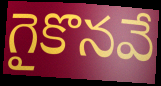
గైకొనవే